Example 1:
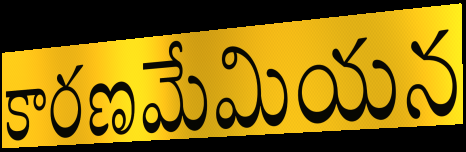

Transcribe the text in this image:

కారణమేమియన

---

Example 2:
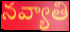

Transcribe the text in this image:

నవ్యాతి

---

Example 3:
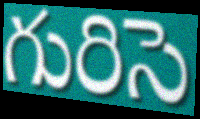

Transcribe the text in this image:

గురిసె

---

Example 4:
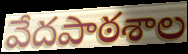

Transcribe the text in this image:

వేదపాఠశాల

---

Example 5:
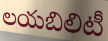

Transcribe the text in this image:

లయబిలిటీ